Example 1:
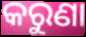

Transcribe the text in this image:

କରୁଣା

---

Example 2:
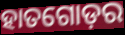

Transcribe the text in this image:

ହାତଗୋଡ଼ର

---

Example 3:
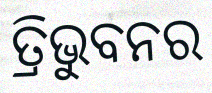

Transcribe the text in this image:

ତ୍ରିଭୁବନର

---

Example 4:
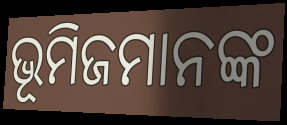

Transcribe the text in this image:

ଭୂମିଜମାନଙ୍କ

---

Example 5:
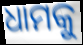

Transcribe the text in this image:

ଧାମକୁ